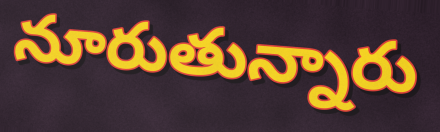
నూరుతున్నారు